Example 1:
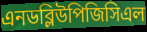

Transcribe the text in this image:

এনডব্লিউপিজিসিএল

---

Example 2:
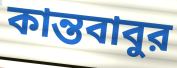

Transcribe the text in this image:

কান্তবাবুর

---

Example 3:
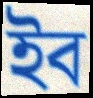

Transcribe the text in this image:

ইব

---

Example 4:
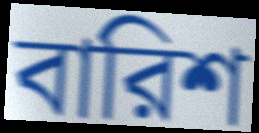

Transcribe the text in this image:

বারিশ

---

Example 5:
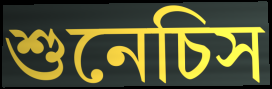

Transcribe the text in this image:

শুনেচিস